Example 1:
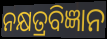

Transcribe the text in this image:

ନକ୍ଷତ୍ରବିଜ୍ଞାନ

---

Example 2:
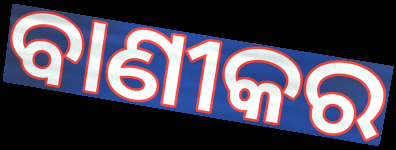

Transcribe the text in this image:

ବାଣୀକର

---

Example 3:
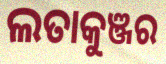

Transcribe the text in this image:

ଲତାକୁଞ୍ଜର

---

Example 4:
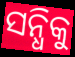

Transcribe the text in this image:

ସନ୍ଧିକୁ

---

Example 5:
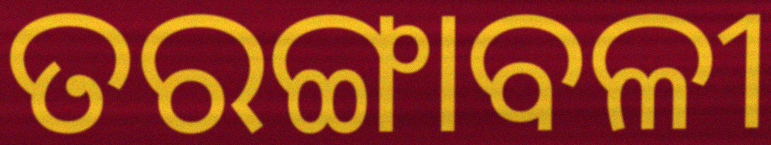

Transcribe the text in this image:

ତରଙ୍ଗାବଳୀ